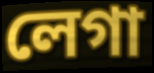
লেগা